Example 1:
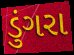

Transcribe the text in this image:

ડુંગરા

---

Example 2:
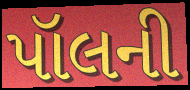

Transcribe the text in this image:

પૉલની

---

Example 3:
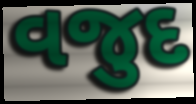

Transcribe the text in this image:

વજુદ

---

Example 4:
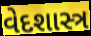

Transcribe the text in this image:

વેદશાસ્ત્ર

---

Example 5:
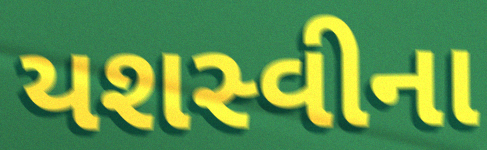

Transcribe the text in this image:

યશસ્વીના